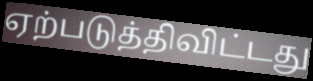
ஏற்படுத்திவிட்டது